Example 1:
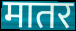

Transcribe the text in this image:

मातर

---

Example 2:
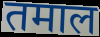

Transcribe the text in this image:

तमाल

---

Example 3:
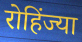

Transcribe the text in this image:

रोहिंज्या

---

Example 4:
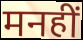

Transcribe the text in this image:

मनहीं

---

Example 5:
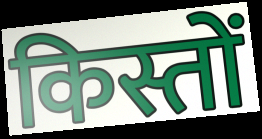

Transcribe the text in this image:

किस्तों